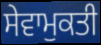
ਸੇਵਾਮੁਕਤੀ